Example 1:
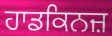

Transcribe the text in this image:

ਹਾਡਕਿਨਜ਼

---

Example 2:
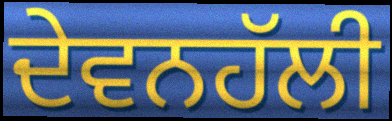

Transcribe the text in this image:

ਦੇਵਨਹੱਲੀ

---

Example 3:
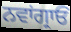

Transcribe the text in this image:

ਨਵਾਂਗ੍ਰਾਓਂ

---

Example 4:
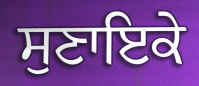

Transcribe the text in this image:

ਸੁਣਾਇਕੇ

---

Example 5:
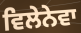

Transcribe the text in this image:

ਵਿਲੇਨੇਵਾ